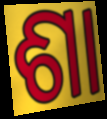
ଶା